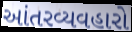
આંતરવ્યવહારો